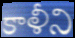
కాళీని